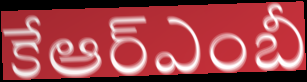
కేఆర్ఎంబీ